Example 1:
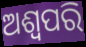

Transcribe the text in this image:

ଅଶ୍ୱପରି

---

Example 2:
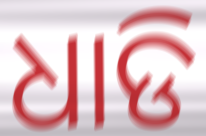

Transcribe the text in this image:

ଧାଡି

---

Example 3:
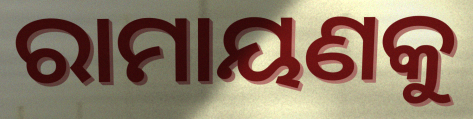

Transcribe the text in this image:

ରାମାୟଣକୁ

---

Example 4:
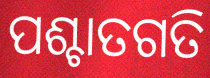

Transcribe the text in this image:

ପଶ୍ଚାତଗତି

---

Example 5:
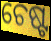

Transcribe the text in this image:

ଚେଷ୍ଟ